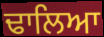
ਢਾਲਿਆ